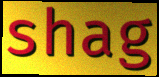
shag